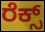
ರೆಕ್ಸ್